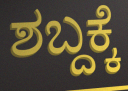
ಶಬ್ದಕ್ಕೆ